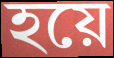
হয়ে